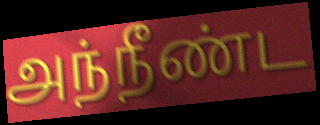
அந்நீண்ட